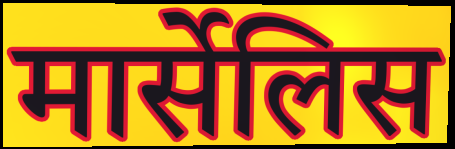
मार्सेलिस